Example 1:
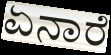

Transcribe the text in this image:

ಏನಾರೆ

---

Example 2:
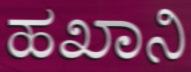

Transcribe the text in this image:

ಹಖಾನಿ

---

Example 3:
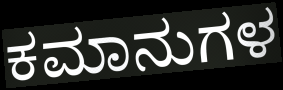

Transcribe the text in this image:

ಕಮಾನುಗಳ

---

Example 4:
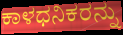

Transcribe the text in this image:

ಕಾಳಧನಿಕರನ್ನು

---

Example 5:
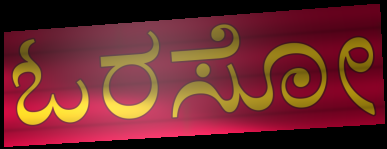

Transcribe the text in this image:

ಓರಸೋ